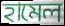
হামেল